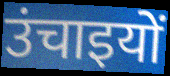
उंचाइयों